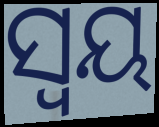
ସ୍ୱୟ